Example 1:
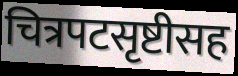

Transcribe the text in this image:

चित्रपटसृष्टीसह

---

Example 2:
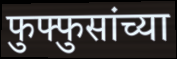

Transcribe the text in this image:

फुफ्फुसांच्या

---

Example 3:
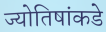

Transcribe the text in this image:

ज्योतिषांकडे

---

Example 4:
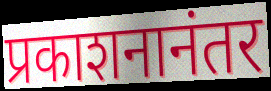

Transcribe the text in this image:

प्रकाशनानंतर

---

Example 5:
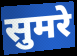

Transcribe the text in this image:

सुमरे